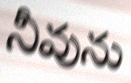
నీవును